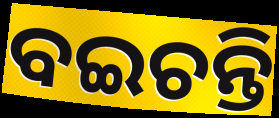
ବଇଚନ୍ତି